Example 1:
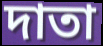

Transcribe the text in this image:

দাতা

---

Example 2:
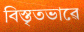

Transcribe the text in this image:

বিস্তৃতভাৱে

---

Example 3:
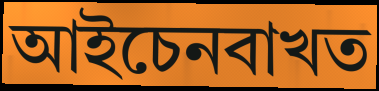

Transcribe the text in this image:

আইচেনবাখত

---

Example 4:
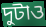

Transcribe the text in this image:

দুটাও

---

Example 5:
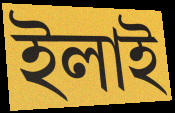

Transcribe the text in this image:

ইলাই